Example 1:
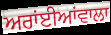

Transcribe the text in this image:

ਅਰਾਂਈਆਂਵਾਲਾ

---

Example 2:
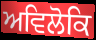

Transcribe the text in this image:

ਅਵਿਲੋਕਿ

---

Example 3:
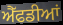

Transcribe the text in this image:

ਐੱਫਡੀਆਂ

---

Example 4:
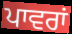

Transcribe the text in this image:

ਪਾਵਰਾਂ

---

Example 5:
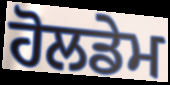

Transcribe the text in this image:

ਹੋਲਡੇਮ